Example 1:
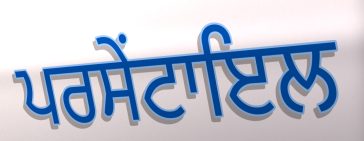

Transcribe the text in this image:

ਪਰਸੇਂਟਾਇਲ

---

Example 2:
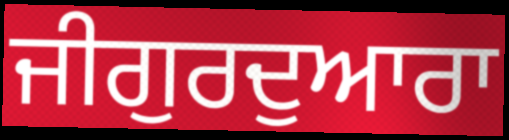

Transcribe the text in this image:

ਜੀਗੁਰਦੁਆਰਾ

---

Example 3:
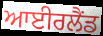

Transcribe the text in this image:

ਆਈਰਲੈਂਡ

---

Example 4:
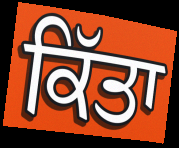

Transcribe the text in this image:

ਕਿੱਤਾ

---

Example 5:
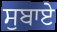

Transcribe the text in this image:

ਸੁਬਾਏ